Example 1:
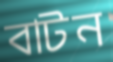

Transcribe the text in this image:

বাটন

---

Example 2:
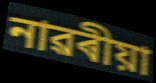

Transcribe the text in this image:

নাৱৰীয়া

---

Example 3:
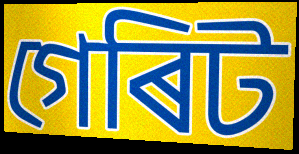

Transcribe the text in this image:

গেৰিট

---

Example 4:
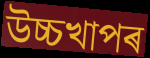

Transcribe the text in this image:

উচ্চখাপৰ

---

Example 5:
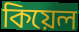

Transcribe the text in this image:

কিয়েল